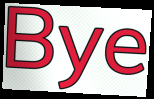
Bye